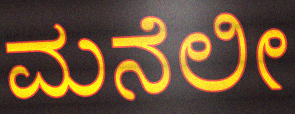
ಮನೆಲೀ